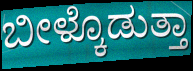
ಬೀಳ್ಕೊಡುತ್ತಾ